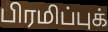
பிரமிப்புக்